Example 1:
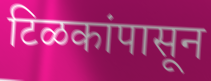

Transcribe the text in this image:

टिळकांपासून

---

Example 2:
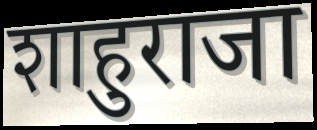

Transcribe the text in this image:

शाहुराजा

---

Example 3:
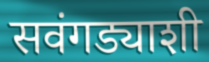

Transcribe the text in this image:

सवंगड्याशी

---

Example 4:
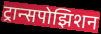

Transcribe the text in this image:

ट्रान्सपोझिशन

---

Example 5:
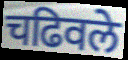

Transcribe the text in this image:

चढिवले